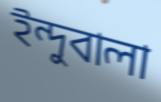
ইন্দুবালা